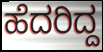
ಹೆದರಿದ್ದ